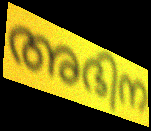
അഭിന